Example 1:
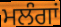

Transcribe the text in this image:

ਮਲੰਗਾਂ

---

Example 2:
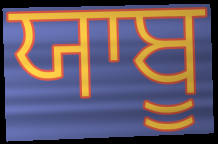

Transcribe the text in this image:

ਯਾਬੂ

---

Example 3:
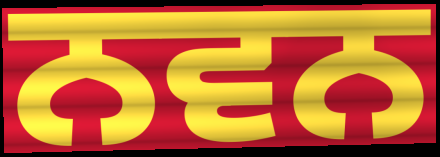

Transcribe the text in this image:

ਨਵਨ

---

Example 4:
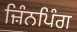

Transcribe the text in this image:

ਜ਼ਿੰਨਪਿੰਗ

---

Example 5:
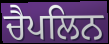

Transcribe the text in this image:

ਚੈਪਲਿਨ